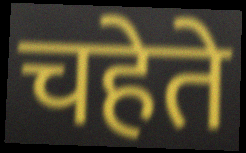
चहेते